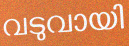
വടുവായി